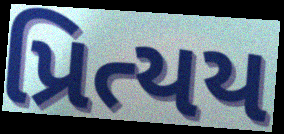
પ્રિત્યય